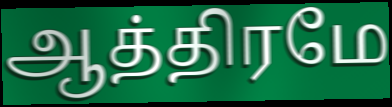
ஆத்திரமே